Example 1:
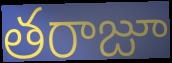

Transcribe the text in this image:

తరాజూ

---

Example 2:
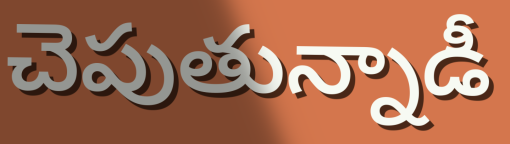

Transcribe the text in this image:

చెపుతున్నాడీ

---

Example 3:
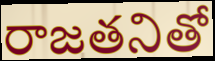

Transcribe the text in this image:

రాజతనితో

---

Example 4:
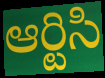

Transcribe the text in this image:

ఆర్టిసి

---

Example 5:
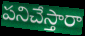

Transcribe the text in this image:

పనిచేస్తారా